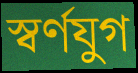
স্বর্ণযুগ